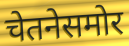
चेतनेसमोर